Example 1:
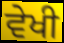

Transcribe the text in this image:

ਵੇਖੀ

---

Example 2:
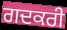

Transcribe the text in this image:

ਗਦਕਰੀ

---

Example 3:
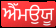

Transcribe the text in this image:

ਐੱਮਉਯੂ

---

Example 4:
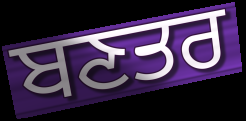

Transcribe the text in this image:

ਬਣਤਰ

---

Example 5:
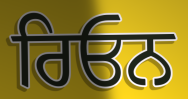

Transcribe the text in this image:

ਰਿਓਨ